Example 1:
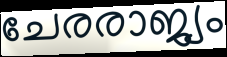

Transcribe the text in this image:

ചേരരാജ്യം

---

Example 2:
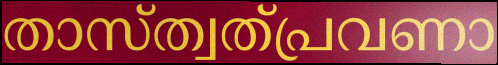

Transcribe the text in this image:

താസ്ത്വത്പ്രവണാ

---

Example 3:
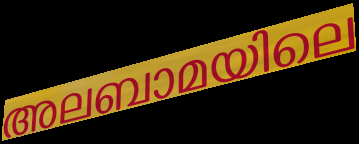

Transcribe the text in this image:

അലബാമയിലെ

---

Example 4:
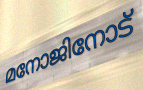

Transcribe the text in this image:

മനോജിനോട്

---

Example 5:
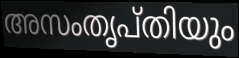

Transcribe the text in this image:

അസംതൃപ്തിയും